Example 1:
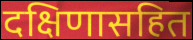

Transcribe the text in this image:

दक्षिणासहित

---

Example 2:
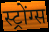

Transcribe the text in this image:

स्ट्रोंग्स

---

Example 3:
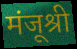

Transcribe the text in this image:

मंजूश्री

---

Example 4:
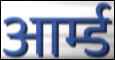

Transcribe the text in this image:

आर्म्ड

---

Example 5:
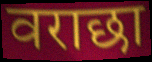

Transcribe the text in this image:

वराछा